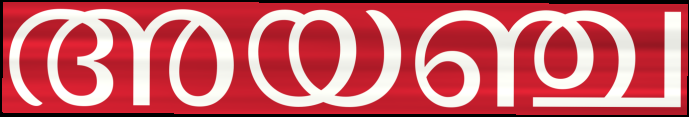
അയഞ്ച